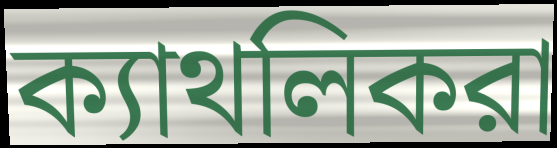
ক্যাথলিকরা